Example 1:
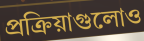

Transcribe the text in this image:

প্রক্রিয়াগুলোও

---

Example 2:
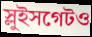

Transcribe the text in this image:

স্লুইসগেটও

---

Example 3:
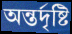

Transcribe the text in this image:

অন্তর্দৃষ্টি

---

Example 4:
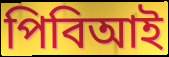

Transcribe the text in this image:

পিবিআই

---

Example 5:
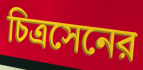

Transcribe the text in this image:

চিত্রসেনের